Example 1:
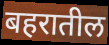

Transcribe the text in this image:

बहरातील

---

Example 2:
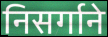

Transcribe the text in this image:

निसर्गाने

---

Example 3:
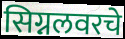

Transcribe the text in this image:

सिग्नलवरचे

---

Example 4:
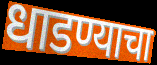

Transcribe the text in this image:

धाडण्याचा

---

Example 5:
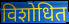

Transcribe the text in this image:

विशोधित